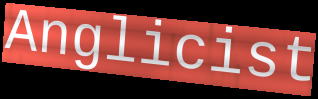
Anglicist